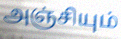
அஞ்சியும்